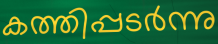
കത്തിപ്പടർന്നു